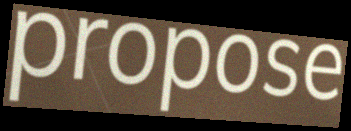
propose